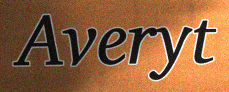
Averyt